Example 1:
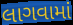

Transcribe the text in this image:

લાગવામાં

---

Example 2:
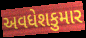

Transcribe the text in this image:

અવધેશકુમાર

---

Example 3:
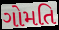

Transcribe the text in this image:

ગોમતિ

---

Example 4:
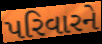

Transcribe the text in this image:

પરિવારને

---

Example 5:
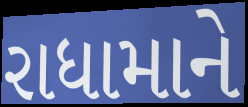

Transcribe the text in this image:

રાધામાને